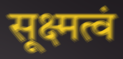
सूक्ष्मत्वं